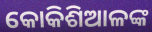
କୋକିଶିଆଳଙ୍କ